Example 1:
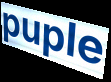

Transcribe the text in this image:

puple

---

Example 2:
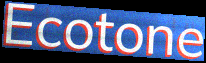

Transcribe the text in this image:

Ecotone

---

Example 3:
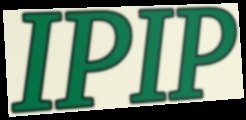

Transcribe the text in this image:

IPIP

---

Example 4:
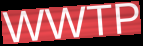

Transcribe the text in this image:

WWTP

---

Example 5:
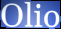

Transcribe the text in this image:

Olio